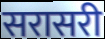
सरासरी